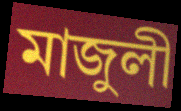
মাজুলী